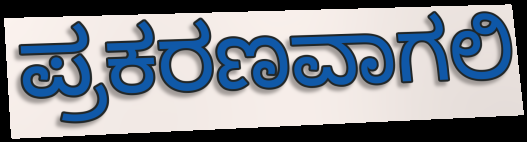
ಪ್ರಕರಣವಾಗಲಿ